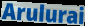
Arulurai